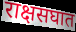
राक्षसघात